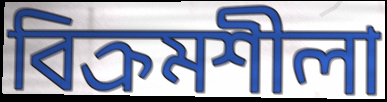
বিক্ৰমশীলা